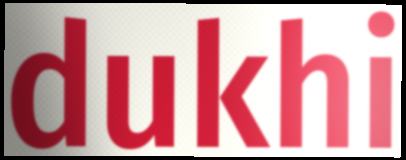
dukhi